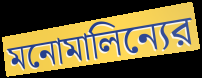
মনোমালিন্যের